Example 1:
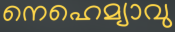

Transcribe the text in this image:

നെഹെമ്യാവു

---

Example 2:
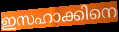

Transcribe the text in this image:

ഇസഹാക്കിനെ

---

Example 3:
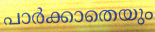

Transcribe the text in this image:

പാർക്കാതെയും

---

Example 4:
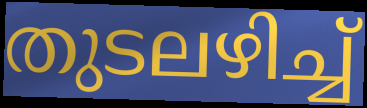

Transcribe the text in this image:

തുടലഴിച്ച്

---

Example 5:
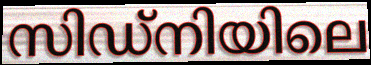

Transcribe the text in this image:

സിഡ്നിയിലെ